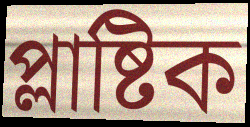
প্লাষ্টিক